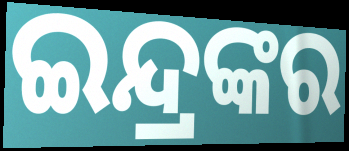
ଇନ୍ଦ୍ରଙ୍କର